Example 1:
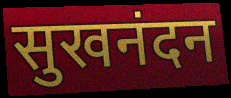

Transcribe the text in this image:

सुखनंदन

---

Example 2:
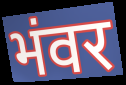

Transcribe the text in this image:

भंवर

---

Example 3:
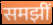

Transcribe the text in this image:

समझीं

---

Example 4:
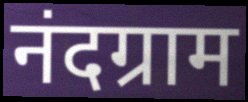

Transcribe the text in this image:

नंदग्राम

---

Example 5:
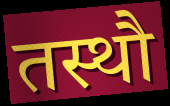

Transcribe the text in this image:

तस्थौ